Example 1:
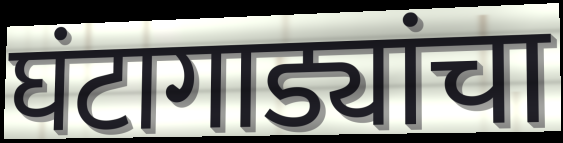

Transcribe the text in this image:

घंटागाड्यांचा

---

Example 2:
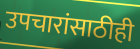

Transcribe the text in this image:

उपचारांसाठीही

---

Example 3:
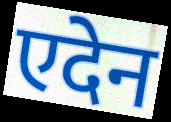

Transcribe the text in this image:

एदेन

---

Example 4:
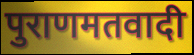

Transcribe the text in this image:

पुराणमतवादी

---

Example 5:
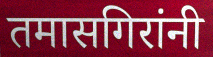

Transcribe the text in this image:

तमासगिरांनी